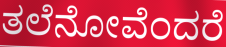
ತಲೆನೋವೆಂದರೆ